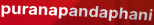
puranapandaphani